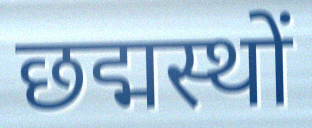
छद्मस्थों